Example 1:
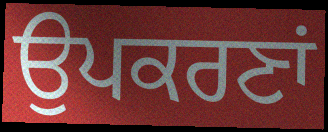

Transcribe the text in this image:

ਉਪਕਰਣਾਂ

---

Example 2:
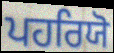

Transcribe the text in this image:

ਪਹਰਿਯੋ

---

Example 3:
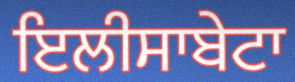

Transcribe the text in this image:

ਇਲੀਸਾਬੇਟਾ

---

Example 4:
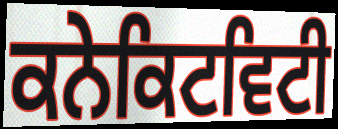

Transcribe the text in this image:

ਕਨੇਕਿਟਵਿਟੀ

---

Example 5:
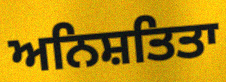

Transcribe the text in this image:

ਅਨਿਸ਼ਤਿਤਾ